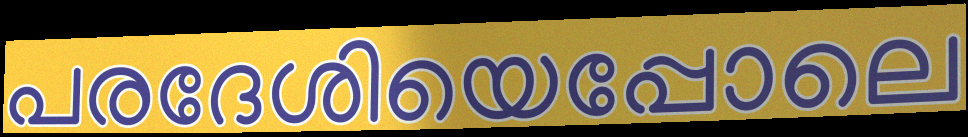
പരദേശിയെപ്പോലെ